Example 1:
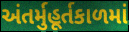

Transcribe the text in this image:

અંતર્મુહૂર્તકાળમાં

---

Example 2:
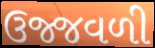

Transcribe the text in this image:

ઉજ્જવળી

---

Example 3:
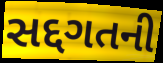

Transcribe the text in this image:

સદ્દગતની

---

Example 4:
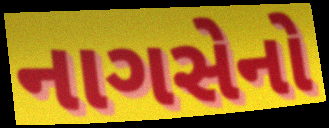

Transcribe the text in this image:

નાગસેનો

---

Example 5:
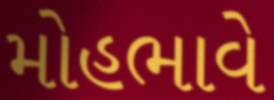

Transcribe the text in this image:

મોહભાવે